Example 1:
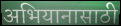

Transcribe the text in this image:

अभियानासाठी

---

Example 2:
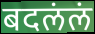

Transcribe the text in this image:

बदलंलं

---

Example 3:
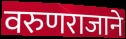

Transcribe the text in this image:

वरुणराजाने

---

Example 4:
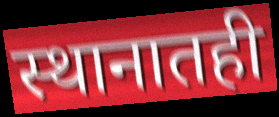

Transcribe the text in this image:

स्थानातही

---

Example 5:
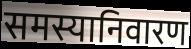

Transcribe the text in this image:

समस्यानिवारण